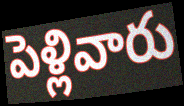
పెళ్లివారు